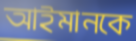
আইমানকে